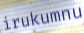
irukumnu